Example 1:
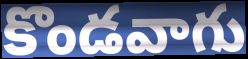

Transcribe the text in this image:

కొండవాగు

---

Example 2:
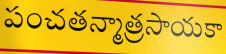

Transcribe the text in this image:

పంచతన్మాత్రసాయకా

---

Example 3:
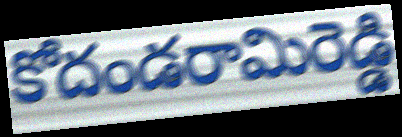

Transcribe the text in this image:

కోదండరామిరెడ్డి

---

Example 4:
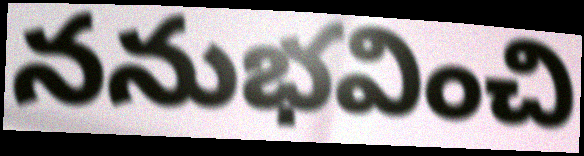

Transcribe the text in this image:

ననుభవించి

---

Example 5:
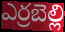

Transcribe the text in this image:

ఎర్రబెల్లి